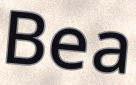
Bea